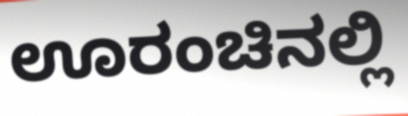
ಊರಂಚಿನಲ್ಲಿ